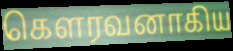
கௌரவனாகிய